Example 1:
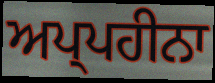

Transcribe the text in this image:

ਅਪ੍ਪਹੀਨਾ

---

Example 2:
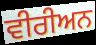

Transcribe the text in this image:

ਵੀਰੀਅਨ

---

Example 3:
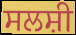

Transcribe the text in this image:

ਸਲਸ਼ੀ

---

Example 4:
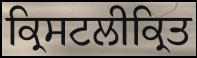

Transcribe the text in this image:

ਕ੍ਰਿਸਟਲੀਕ੍ਰਿਤ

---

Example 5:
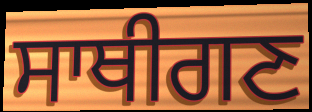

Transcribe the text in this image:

ਸਾਥੀਗਣ